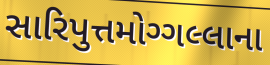
સારિપુત્તમોગ્ગલ્લાના